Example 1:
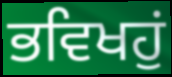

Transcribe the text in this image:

ਭਵਿਖਹੁਂ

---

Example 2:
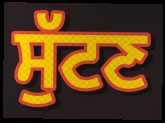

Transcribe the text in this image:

ਸੁੱਟਣ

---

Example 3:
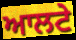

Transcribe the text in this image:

ਆਲਟੇ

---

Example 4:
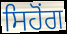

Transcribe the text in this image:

ਸਿਹੋਂਗ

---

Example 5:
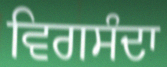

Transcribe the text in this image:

ਵਿਗਸੰਦਾ